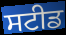
ਸਟੀਡ